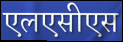
एलएसीएस